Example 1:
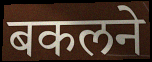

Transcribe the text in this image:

बकलने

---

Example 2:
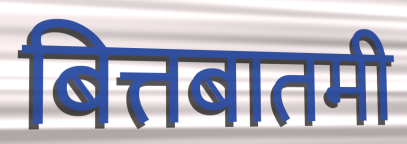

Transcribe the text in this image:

बित्तबातमी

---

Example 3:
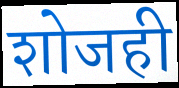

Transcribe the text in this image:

शोजही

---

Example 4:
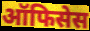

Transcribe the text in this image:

ऑफिसेस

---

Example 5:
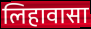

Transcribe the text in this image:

लिहावासा